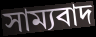
সাম্যবাদ